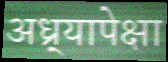
अध्र्यापेक्षा